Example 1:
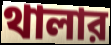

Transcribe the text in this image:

থালার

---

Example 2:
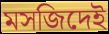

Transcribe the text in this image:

মসজিদেই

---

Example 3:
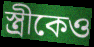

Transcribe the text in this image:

স্ত্রীকেও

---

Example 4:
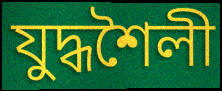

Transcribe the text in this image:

যুদ্ধশৈলী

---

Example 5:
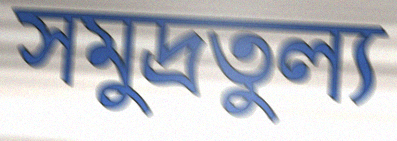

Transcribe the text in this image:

সমুদ্রতুল্য